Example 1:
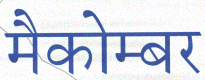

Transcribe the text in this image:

मैकोम्बर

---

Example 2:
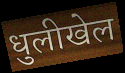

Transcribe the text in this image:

धुलीखेल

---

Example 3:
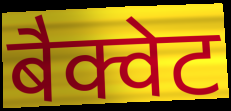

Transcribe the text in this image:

बैक्वेट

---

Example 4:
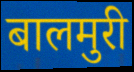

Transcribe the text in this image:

बालमुरी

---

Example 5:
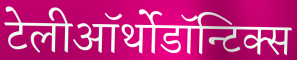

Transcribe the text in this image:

टेलीऑर्थोडॉन्टिक्स